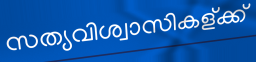
സത്യവിശ്വാസികള്ക്ക്